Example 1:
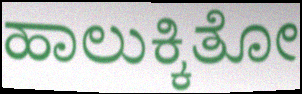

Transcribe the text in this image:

ಹಾಲುಕ್ಕಿತೋ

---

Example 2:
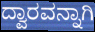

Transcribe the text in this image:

ದ್ವಾರವನ್ನಾಗಿ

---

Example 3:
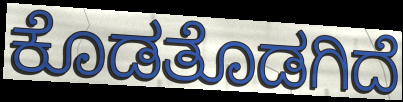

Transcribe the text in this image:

ಕೊಡತೊಡಗಿದೆ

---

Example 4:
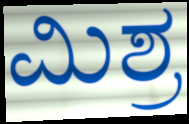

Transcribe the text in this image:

ಮಿಶ್ರ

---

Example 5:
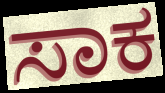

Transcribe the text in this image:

ಸಾಕ